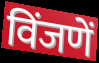
विंजणें